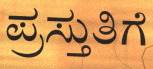
ಪ್ರಸ್ತುತಿಗೆ